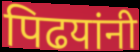
पिढयांनी